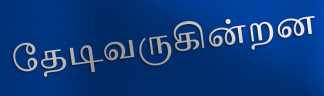
தேடிவருகின்றன